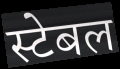
स्टेबल